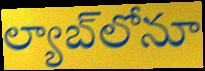
ల్యాబ్‌లోనూ